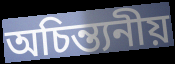
অচিন্ত্যনীয়